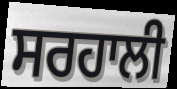
ਸਰਹਾਲੀ